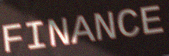
FINANCE